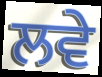
ਲਵੇ